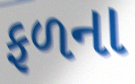
ફળના